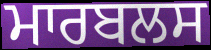
ਮਾਰਬਲਸ